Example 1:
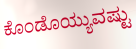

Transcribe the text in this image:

ಕೊಂಡೊಯ್ಯುವಷ್ಟು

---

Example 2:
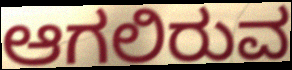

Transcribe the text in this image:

ಆಗಲಿರುವ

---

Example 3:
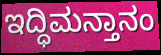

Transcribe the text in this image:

ಇದ್ಧಿಮನ್ತಾನಂ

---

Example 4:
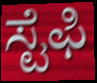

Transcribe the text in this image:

ಸ್ಟೆಫಿ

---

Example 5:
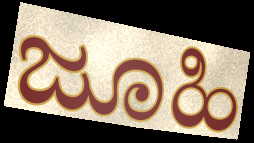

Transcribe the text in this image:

ಜೂಹಿ